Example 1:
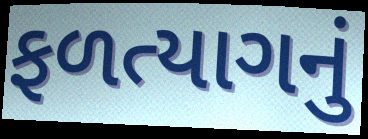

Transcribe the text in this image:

ફળત્યાગનું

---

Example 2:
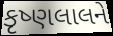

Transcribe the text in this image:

કૃષ્ણલાલને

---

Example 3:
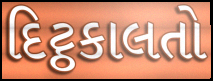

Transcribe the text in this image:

દિટ્ઠકાલતો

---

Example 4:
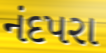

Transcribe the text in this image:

નંદપરા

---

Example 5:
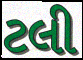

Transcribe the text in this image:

ટલી